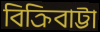
বিক্রিবাট্টা